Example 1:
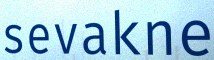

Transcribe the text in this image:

sevakne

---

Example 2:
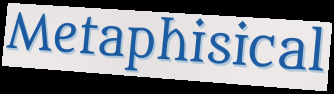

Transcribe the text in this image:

Metaphisical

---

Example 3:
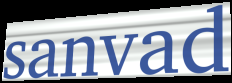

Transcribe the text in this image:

sanvad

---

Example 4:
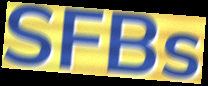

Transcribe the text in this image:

SFBs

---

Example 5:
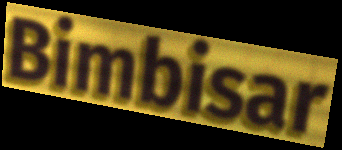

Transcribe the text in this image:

Bimbisar